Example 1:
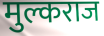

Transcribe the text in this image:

मुल्कराज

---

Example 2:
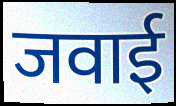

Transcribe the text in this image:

जवाई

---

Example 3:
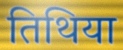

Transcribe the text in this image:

तिथिया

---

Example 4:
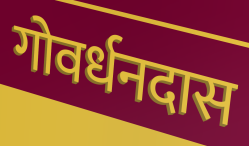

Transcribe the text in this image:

गोवर्धनदास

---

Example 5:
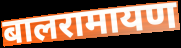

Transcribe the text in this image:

बालरामायण